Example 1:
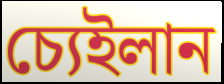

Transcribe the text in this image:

চ্যেইলান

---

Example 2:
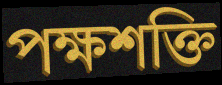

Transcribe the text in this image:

পক্ষশক্তি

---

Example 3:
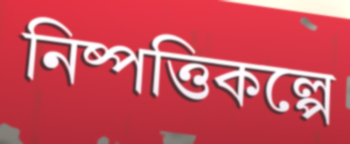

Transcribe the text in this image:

নিষ্পত্তিকল্পে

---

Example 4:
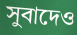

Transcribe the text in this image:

সুবাদেও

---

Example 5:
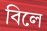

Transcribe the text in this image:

বিলে